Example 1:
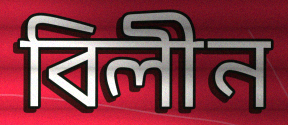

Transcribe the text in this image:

বিলীন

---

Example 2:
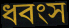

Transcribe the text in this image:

ধবংস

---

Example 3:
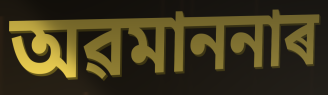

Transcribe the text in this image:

অৱমাননাৰ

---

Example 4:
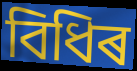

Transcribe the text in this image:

বিধিৰ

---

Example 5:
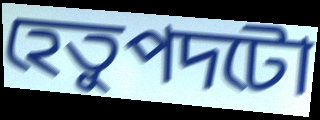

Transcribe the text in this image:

হেতুপদটো